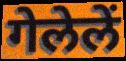
गेलेलें